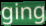
ging